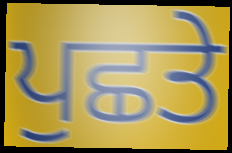
ਪੁਛਤੇ